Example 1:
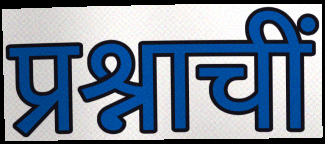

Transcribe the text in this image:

प्रश्नाचीं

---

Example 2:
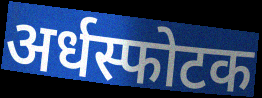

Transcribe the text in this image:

अर्धस्फोटक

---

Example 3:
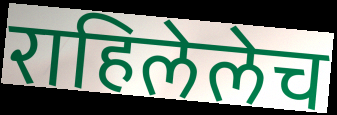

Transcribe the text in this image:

राहिलेलेच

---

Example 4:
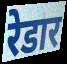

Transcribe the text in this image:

रेडार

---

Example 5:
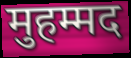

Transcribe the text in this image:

मुहम्मद